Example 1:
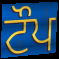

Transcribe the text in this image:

ਟੌਪ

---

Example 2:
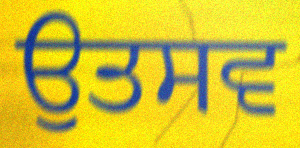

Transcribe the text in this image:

ਉਤਸਵ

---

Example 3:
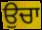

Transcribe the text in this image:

ਉਚਾ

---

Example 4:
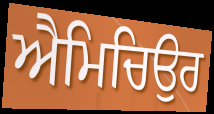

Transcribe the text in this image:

ਐਮਿਚਿਉਰ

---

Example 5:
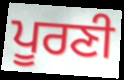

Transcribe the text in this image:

ਪੂਰਣੀ